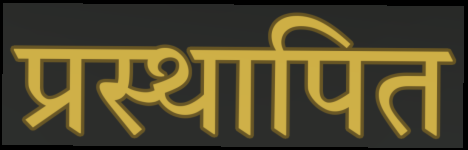
प्रस्थापित